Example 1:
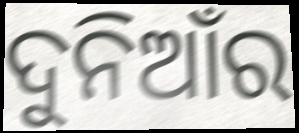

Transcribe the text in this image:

ଦୁନିଆଁର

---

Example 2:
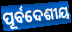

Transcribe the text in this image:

ପୂର୍ବଦେଶୀୟ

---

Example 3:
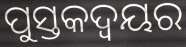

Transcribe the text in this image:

ପୁସ୍ତକଦ୍ୱୟର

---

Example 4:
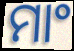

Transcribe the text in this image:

ମାଂ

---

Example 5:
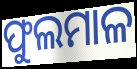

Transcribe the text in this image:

ଫୁଲମାଳ